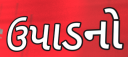
ઉપાડનો